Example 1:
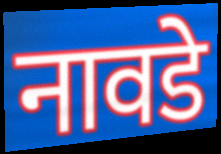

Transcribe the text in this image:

नावडे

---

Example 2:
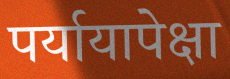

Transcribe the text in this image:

पर्यायापेक्षा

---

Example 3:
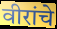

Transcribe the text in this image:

वीरांचे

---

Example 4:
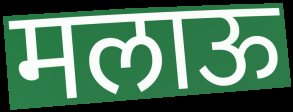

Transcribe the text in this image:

मलाऊ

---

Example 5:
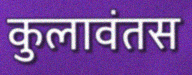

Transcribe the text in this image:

कुलावंतस